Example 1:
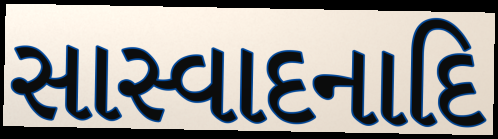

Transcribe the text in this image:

સાસ્વાદનાદિ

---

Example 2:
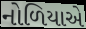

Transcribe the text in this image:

નોળિયાએ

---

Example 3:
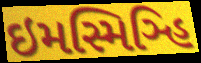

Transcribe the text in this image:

ઇમસ્મિઞ્હિ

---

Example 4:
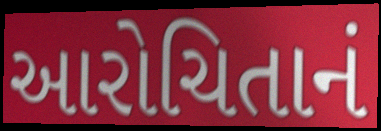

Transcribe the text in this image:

આરોચિતાનં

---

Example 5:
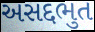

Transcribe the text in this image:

અસદ્દભુત